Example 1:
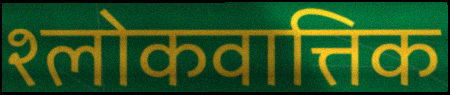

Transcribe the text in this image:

श्लोकवात्तिक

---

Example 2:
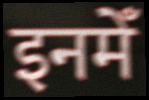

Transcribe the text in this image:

इनमेँ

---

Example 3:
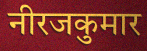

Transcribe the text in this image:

नीरजकुमार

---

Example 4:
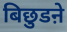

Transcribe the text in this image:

बिछुडऩे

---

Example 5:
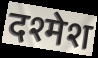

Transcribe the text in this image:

दश्मेश